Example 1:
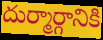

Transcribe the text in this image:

దుర్మార్గానికి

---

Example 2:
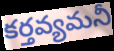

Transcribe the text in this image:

కర్తవ్యమనీ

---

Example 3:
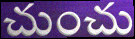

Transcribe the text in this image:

చుంచు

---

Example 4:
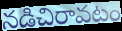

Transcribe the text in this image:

నడిచిరావటం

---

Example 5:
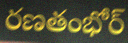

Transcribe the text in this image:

రణతంభోర్